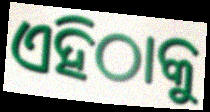
ଏହିଠାକୁ